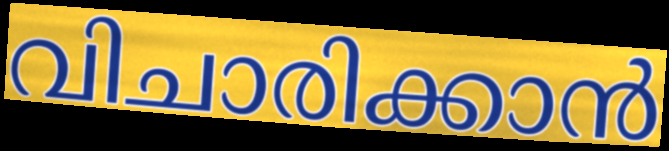
വിചാരിക്കാൻ